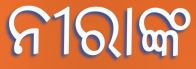
ନୀରାଙ୍କ